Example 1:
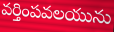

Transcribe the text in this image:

వర్తింపవలయును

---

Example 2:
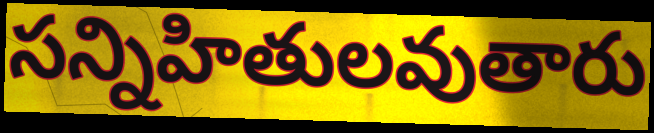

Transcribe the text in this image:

సన్నిహితులవుతారు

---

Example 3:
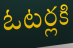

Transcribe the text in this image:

ఓటర్లకి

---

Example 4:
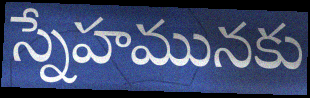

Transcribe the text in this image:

స్నేహమునకు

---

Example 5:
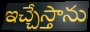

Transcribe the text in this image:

ఇచ్చేస్తాను